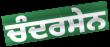
ਚੰਦਰਸੇਨ